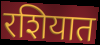
रशियात